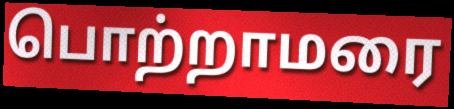
பொற்றாமரை